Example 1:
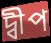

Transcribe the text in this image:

দ্বীপ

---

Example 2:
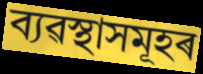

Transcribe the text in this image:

ব্যৱস্থাসমূহৰ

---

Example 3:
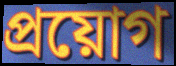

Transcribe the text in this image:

প্ৰয়োগ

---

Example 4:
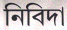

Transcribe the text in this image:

নিবিদা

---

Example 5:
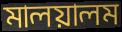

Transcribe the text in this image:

মালয়ালম